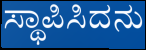
ಸ್ಥಾಪಿಸಿದನು